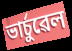
ভাৰ্চুৱেল